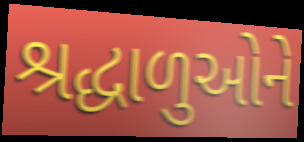
શ્રદ્ધાળુઓને